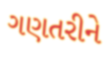
ગણતરીને